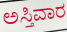
ಅಸ್ತಿವಾರ